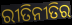
ରୀତିନୀତିର